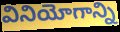
వినియోగాన్ని